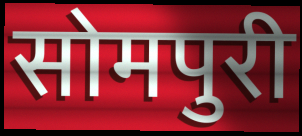
सोमपुरी